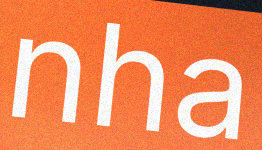
nha